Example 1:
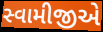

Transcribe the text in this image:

સ્વામીજીએ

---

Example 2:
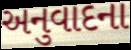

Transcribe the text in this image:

અનુવાદના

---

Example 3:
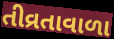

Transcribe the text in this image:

તીવ્રતાવાળા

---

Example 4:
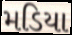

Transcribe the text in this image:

મડિયા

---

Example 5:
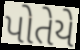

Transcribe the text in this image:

પોતેયે